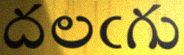
దలఁగు